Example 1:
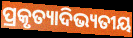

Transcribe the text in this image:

ପ୍ରକୃତ୍ୟାଦିଭ୍ୟତୀୟ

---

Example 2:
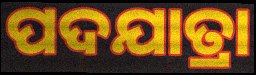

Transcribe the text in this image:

ପଦଯାତ୍ରା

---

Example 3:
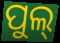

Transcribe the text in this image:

ପୁଲ୍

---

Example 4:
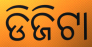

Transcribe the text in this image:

ଡିଜିଟା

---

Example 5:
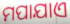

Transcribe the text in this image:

ମପାଯାଏ